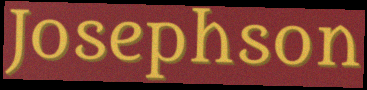
Josephson